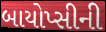
બાયોપ્સીની